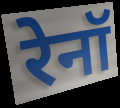
रेनॉ